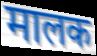
मालक